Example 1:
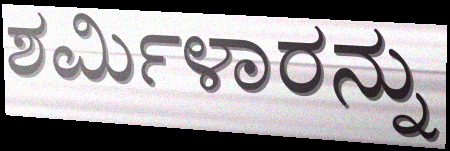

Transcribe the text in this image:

ಶರ್ಮಿಳಾರನ್ನು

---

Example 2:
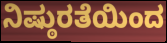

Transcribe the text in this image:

ನಿಷ್ಠುರತೆಯಿಂದ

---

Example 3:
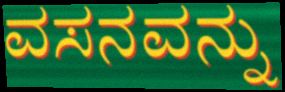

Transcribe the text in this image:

ವಸನವನ್ನು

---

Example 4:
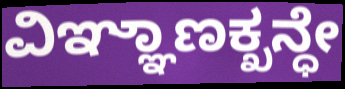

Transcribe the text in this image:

ವಿಞ್ಞಾಣಕ್ಖನ್ಧೇ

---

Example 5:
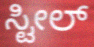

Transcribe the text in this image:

ಸ್ಟೀಲ್